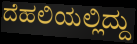
ದೆಹಲಿಯಲ್ಲಿದ್ದು